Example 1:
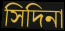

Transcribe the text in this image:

সিদিনা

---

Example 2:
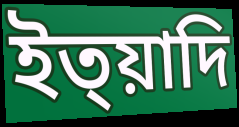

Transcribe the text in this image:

ইত্য়াদি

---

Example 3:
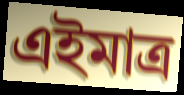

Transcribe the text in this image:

এইমাত্ৰ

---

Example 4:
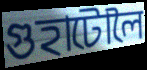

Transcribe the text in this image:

গুহাটোলৈ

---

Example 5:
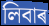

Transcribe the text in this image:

লিবাৰ